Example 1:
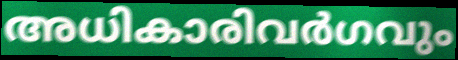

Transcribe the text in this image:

അധികാരിവർഗവും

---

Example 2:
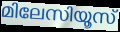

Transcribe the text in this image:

മിലേസിയൂസ്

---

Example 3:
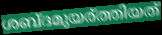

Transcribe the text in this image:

ശബ്ദമുയര്ത്തിയത്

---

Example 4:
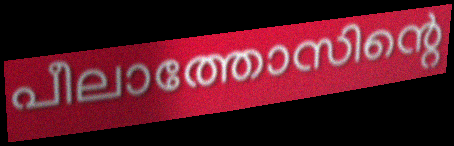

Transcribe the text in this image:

പീലാത്തോസിന്റെ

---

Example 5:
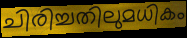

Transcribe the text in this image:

ചിരിച്ചതിലുമധികം